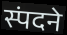
स्पंदने